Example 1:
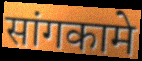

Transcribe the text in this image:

सांगकामे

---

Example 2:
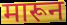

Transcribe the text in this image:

मारून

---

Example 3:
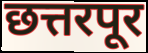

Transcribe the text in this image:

छत्तरपूर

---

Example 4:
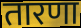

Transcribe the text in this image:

तारणा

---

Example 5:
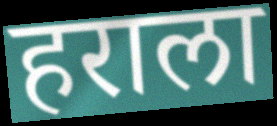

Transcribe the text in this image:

हराला